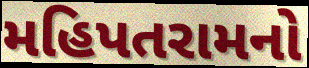
મહિપતરામનો